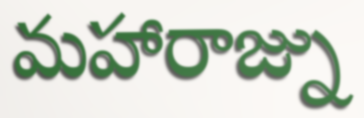
మహారాజ్ను